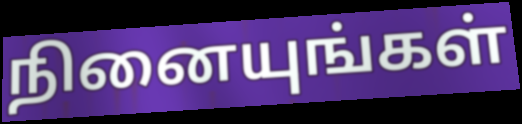
நினையுங்கள்